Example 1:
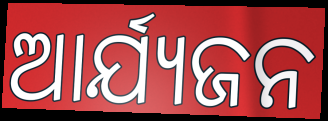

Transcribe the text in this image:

ଆର୍ଯ୍ୟଜନ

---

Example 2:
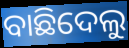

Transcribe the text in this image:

ବାଛିଦେଲୁ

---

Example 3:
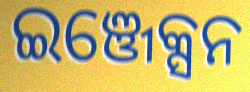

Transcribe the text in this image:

ଇଞ୍ଜେକ୍ସନ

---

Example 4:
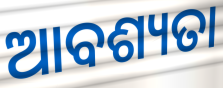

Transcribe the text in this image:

ଆବଶ୍ୟତା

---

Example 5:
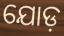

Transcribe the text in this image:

ଯୋଡ଼